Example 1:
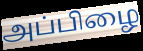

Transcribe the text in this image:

அப்பிழை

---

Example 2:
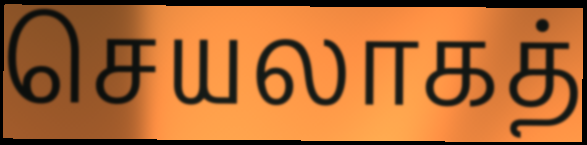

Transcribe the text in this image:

செயலாகத்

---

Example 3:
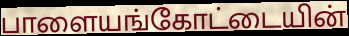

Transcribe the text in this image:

பாளையங்கோட்டையின்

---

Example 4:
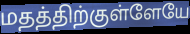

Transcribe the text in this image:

மதத்திற்குள்ளேயே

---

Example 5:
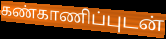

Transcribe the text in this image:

கண்காணிப்புடன்